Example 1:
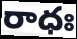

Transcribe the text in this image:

రాధః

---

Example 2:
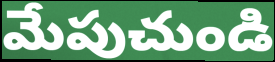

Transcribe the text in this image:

మేపుచుండి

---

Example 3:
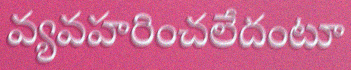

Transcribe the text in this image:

వ్యవహరించలేదంటూ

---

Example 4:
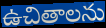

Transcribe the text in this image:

ఉచితాలను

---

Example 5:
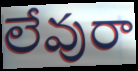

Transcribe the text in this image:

లేవురా